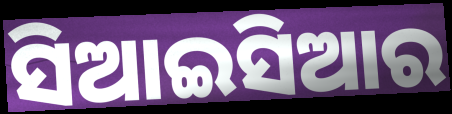
ସିଆଇସିଆର